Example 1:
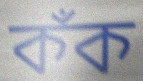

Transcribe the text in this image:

কঁক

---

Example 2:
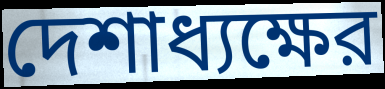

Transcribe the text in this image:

দেশাধ্যক্ষের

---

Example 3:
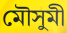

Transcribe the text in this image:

মৌসুমী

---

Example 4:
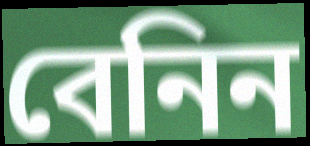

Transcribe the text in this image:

বেনিন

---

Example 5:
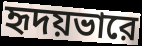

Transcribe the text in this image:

হৃদয়ভারে